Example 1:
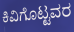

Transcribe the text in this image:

ಕಿವಿಗೊಟ್ಟವರ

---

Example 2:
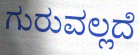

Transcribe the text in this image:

ಗುರುವಲ್ಲದೆ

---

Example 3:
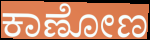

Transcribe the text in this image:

ಕಾಣೋಣ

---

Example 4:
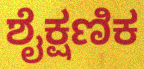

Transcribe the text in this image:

ಶೈಕ್ಷಣಿಕ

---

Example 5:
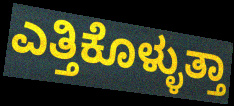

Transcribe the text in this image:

ಎತ್ತಿಕೊಳ್ಳುತ್ತಾ